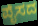
ಪೈಸದ